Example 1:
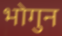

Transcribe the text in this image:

भोगुन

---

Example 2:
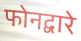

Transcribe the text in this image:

फोनद्वारे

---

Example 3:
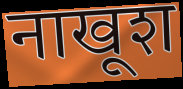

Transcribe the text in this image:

नाखूश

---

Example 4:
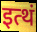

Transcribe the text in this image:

इत्थं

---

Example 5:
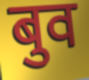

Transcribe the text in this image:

बुव